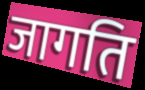
जागति